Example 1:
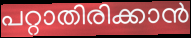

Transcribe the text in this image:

പറ്റാതിരിക്കാൻ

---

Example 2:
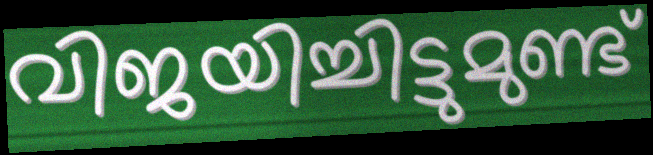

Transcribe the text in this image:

വിജയിച്ചിട്ടുമുണ്ട്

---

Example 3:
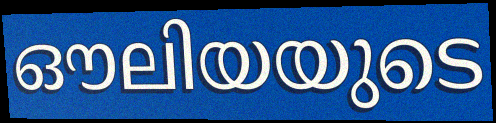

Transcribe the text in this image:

ഔലിയയുടെ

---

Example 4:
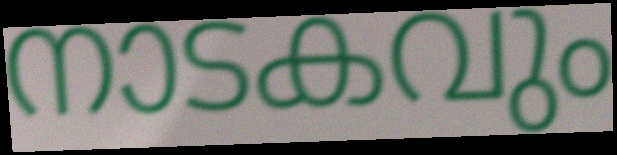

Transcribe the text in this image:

നാടകവും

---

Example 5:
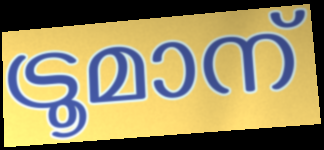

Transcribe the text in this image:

ട്രൂമാന്